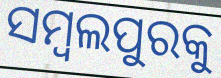
ସମ୍ୱଲପୁରକୁ